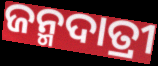
ଜନ୍ମଦାତ୍ରୀ